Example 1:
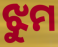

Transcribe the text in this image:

ଝୁମ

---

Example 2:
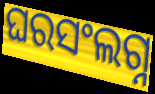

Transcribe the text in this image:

ଘରସଂଲଗ୍ନ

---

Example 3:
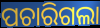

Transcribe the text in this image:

ପଚାରିଗଲା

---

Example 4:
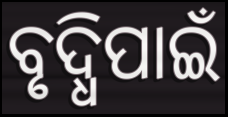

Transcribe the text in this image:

ବୃଦ୍ଧିପାଇଁ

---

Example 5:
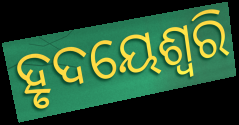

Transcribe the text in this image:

ହୃଦୟେଶ୍ଵରି